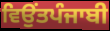
ਵਿਉਂਤਪੰਜਾਬੀ